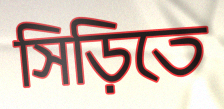
সিড়িতে